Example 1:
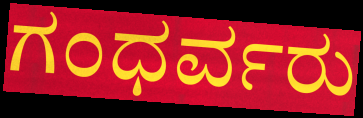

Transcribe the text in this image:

ಗಂಧರ್ವರು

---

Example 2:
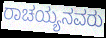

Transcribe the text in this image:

ರಾಚಯ್ಯನವರು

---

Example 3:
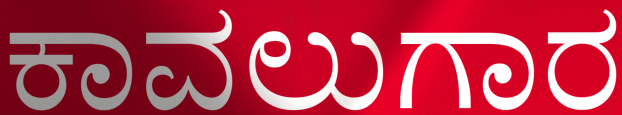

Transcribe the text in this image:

ಕಾವಲುಗಾರ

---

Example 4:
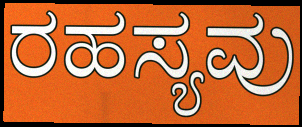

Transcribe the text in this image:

ರಹಸ್ಯವು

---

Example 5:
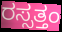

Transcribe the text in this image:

ರಸ್ಸತ್ತಂ